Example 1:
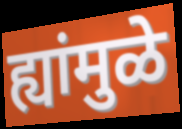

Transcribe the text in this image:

ह्यांमुळे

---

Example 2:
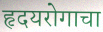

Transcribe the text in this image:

हृदयरोगाचा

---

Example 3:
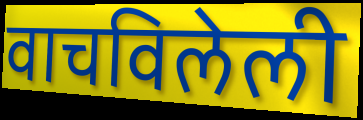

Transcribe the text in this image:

वाचविलेली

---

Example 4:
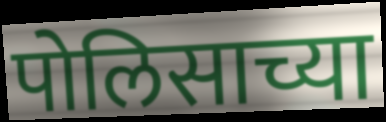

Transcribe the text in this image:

पोलिसाच्या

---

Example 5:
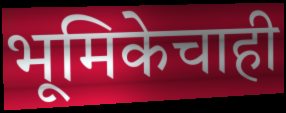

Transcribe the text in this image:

भूमिकेचाही